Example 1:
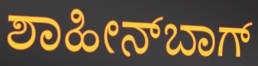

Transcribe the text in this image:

ಶಾಹೀನ್‌ಬಾಗ್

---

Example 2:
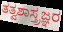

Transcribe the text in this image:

ತತ್ವಶಾಸ್ತ್ರಜ್ಞರ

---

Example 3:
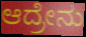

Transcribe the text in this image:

ಆದ್ರೇನು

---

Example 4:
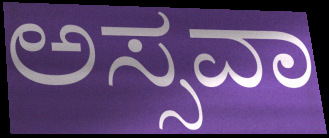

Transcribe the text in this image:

ಅಸ್ಸವಾ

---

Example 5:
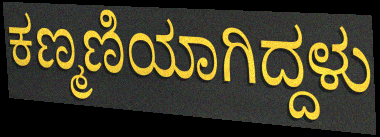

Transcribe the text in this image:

ಕಣ್ಮಣಿಯಾಗಿದ್ದಳು